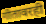
गीतावरही